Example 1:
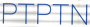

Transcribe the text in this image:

PTPTN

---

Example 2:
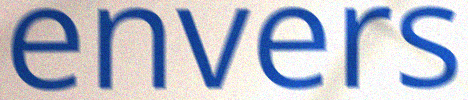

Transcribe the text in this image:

envers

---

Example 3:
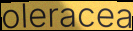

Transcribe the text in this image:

oleracea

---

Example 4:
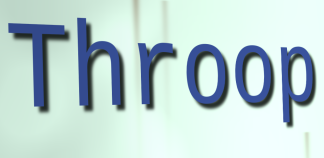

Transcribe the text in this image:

Throop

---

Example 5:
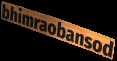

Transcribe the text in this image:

bhimraobansod